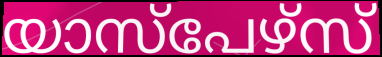
യാസ്പേഴ്സ്